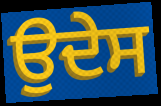
ਉਦੇਸ